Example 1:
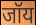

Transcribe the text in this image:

जॉय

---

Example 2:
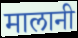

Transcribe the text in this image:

मालानी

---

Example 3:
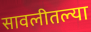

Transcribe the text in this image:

सावलीतल्या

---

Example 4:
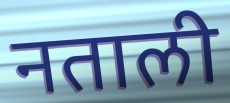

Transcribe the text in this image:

नताली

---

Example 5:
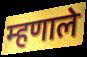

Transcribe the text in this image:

म्हणाले